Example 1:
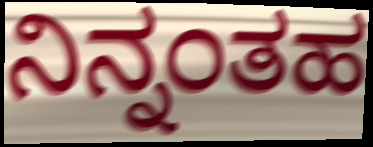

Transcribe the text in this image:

ನಿನ್ನಂತಹ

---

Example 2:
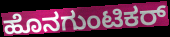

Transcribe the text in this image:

ಹೊನಗುಂಟಿಕರ್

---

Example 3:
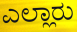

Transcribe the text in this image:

ಎಲ್ಲಾರು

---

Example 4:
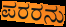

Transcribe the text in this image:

ಪರರನು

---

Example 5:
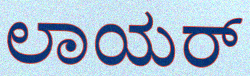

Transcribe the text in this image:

ಲಾಯರ್